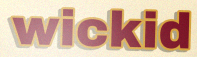
wickid